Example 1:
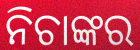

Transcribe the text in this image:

ନିଚାଙ୍କର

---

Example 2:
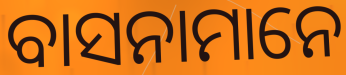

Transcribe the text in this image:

ବାସନାମାନେ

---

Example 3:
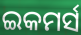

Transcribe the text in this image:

ଇକମର୍ସ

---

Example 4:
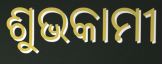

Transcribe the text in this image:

ଶୁଭକାମୀ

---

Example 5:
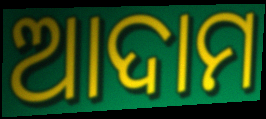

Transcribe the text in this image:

ଆଦାମ